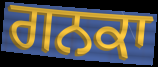
ਗਨਕਾ